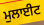
ਮੁਲਾਈਟ